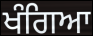
ਖੰਗਿਆ